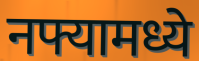
नफ्यामध्ये